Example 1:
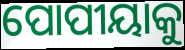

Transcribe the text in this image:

ପୋପୀୟାକୁ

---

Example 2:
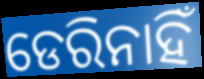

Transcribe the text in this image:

ଡେରିନାହିଁ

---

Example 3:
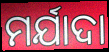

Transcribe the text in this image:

ମର୍ଯାଦା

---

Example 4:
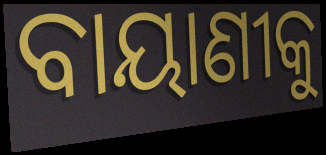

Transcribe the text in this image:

ବାୟାଣୀକୁ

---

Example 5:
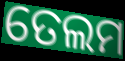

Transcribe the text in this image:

ତେଲମ